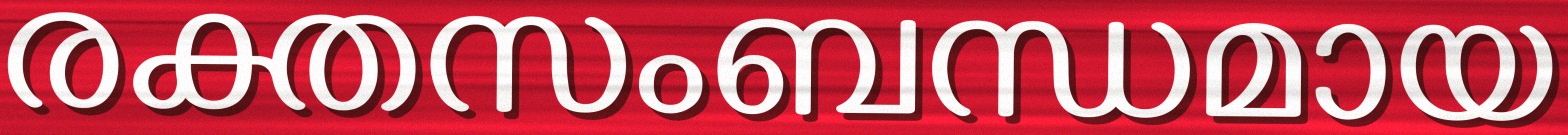
രക്തസംബന്ധമായ